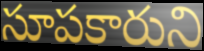
సూపకారుని